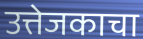
उत्तेजकाचा